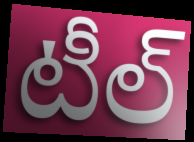
టీల్